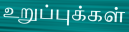
உறுப்புக்கள்